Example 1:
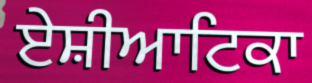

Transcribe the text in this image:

ਏਸ਼ੀਆਟਿਕਾ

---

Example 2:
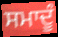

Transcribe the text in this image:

ਸਮਾਦੂੰ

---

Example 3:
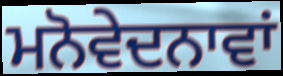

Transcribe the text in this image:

ਮਨੋਵੇਦਨਾਵਾਂ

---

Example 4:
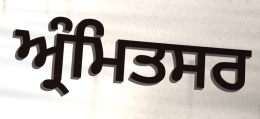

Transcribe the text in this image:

ਅ੍ਰੰਮਿਤਸਰ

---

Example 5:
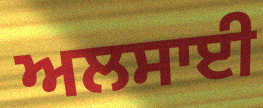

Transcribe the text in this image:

ਅਲਸਾਈ